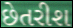
છેતરીશ